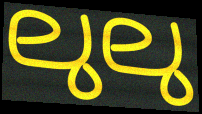
ലുലു